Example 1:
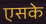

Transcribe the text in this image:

एसके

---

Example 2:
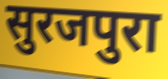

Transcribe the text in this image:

सुरजपुरा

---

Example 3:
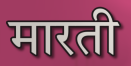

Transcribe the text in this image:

मारती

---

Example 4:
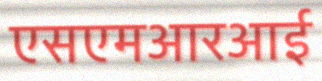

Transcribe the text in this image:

एसएमआरआई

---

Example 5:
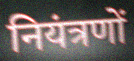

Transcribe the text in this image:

नियंत्रणों